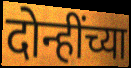
दोन्हींच्या